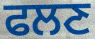
ਫਲਣ